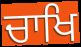
ਚਾਖਿ